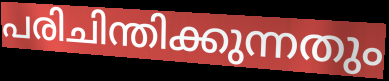
പരിചിന്തിക്കുന്നതും